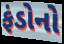
ફંડોનો